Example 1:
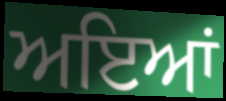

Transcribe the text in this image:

ਅਇਆਂ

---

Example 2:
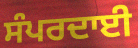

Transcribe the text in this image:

ਸੰਪਰਦਾਈ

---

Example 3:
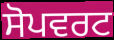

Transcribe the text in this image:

ਸੋਪਵਰਟ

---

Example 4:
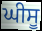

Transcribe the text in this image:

ਘੀਸੂ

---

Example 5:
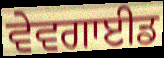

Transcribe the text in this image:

ਵੇਵਗਾਈਡ